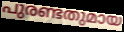
പുരണ്ടതുമായ